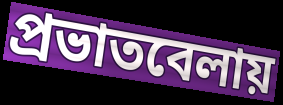
প্রভাতবেলায়